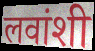
लवांशी